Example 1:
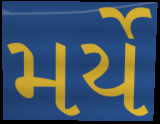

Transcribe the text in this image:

મર્યે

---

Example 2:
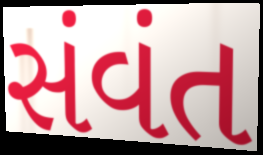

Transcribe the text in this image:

સંવંત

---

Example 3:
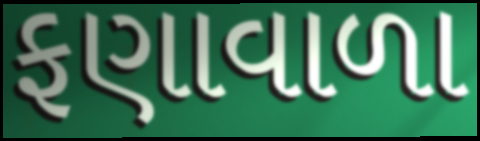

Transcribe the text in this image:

ફણાવાળા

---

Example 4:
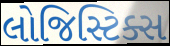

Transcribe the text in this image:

લોજિસ્ટિક્સ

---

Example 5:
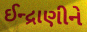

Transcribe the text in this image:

ઈન્દ્રાણીને